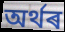
অৰ্থৰ